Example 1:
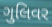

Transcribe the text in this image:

ગુલિવર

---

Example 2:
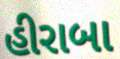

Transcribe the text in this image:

હીરાબા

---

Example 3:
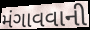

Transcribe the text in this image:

મંગાવવાની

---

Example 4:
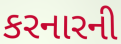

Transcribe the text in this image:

કરનારની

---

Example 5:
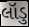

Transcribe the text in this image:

લૉડુ